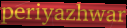
periyazhwar